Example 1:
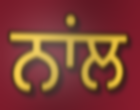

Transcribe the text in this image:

ਨਾਂਲ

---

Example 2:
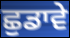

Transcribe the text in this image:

ਛੁਡਾਵੇ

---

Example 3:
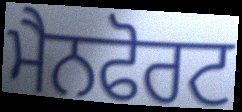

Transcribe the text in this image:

ਮੈਨਫੋਰਟ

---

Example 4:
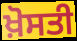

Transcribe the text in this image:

ਖ਼ੋਸਤੀ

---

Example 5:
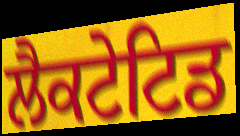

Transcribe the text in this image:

ਲੈਕਟੇਟਿਡ